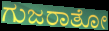
ಗುಜರಾತೋ